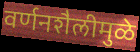
वर्णनशैलीमुळे